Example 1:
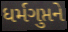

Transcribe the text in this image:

ધર્મગુપ્તને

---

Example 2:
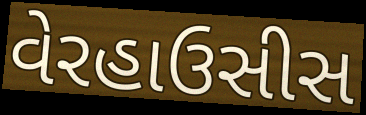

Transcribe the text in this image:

વેરહાઉસીસ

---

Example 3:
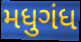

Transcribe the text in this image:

મધુગંધ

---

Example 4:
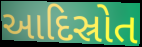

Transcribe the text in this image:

આદિસ્રોત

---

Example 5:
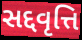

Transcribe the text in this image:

સદ્દવૃત્તિ